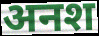
अनश